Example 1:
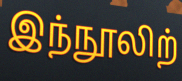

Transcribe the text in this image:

இந்நூலிற்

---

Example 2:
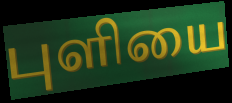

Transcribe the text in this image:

புளியை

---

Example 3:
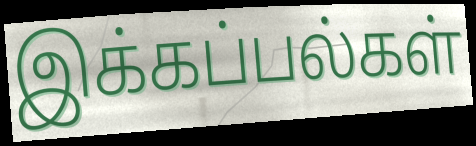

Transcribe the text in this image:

இக்கப்பல்கள்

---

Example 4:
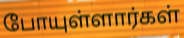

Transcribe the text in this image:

போயுள்ளார்கள்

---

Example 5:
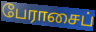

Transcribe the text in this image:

பேராசைப்